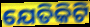
ଯେତିକିଟି